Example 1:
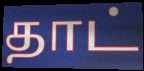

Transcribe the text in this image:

தாட்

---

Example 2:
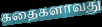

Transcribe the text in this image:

கதைகளாவது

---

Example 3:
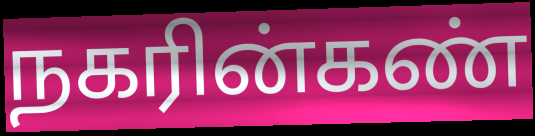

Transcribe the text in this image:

நகரின்கண்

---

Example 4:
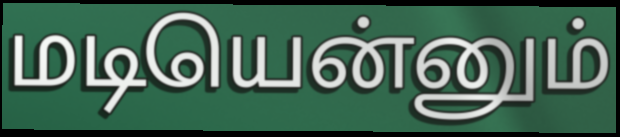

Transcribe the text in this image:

மடியென்னும்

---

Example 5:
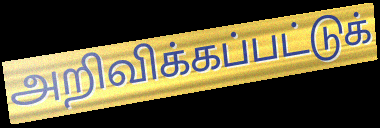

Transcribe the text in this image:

அறிவிக்கப்பட்டுக்